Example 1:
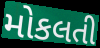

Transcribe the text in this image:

મોકલતી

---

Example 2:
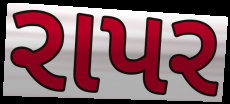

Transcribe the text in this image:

રાપર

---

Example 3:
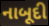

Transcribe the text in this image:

નાબૂદી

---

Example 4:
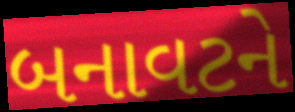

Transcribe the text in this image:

બનાવટને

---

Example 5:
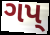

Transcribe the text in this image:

ગપ્